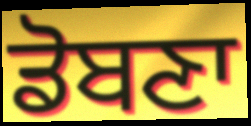
ਡੋਬਣਾ